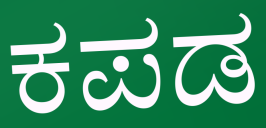
ಕಪಡ